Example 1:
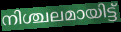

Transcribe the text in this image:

നിശ്ചലമായിട്ട്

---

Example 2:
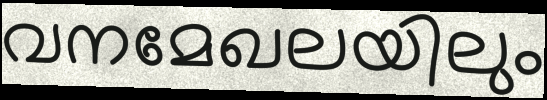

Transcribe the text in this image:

വനമേഖലയിലും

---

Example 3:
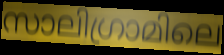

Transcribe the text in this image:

സാലിഗ്രാമിലെ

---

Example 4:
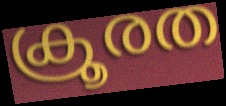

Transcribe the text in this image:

ക്രൂരത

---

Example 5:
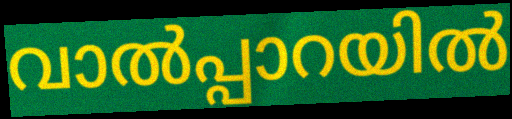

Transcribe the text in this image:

വാൽപ്പാറയിൽ